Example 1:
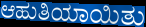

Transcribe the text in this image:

ಆಹುತಿಯಾಯಿತು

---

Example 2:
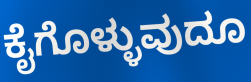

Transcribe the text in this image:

ಕೈಗೊಳ್ಳುವುದೂ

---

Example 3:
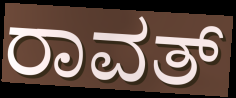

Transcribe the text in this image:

ರಾವತ್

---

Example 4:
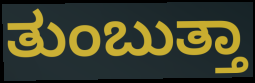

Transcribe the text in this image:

ತುಂಬುತ್ತಾ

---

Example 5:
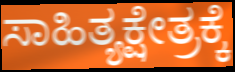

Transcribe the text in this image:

ಸಾಹಿತ್ಯಕ್ಷೇತ್ರಕ್ಕೆ